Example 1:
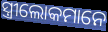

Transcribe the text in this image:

ସ୍ତ୍ରୀଲୋକମାନେ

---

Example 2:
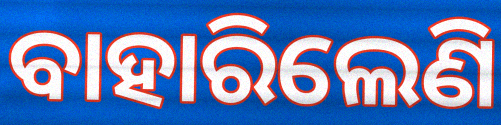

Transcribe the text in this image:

ବାହାରିଲେଣି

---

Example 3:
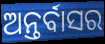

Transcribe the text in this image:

ଅନ୍ତର୍ବାସର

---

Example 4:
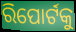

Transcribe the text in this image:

ରିପୋର୍ଟକୁ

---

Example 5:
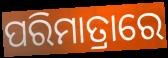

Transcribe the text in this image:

ପରିମାତ୍ରାରେ